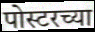
पोस्टरच्या